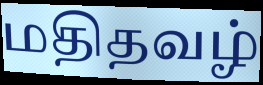
மதிதவழ்